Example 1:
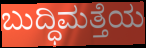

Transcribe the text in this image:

ಬುದ್ಧಿಮತ್ತೆಯ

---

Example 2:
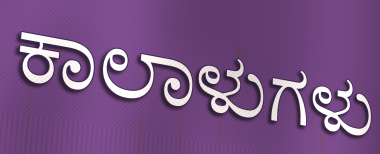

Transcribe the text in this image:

ಕಾಲಾಳುಗಳು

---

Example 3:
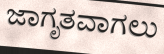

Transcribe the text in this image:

ಜಾಗೃತವಾಗಲು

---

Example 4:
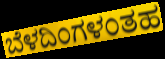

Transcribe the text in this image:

ಬೆಳದಿಂಗಳಂತಹ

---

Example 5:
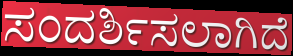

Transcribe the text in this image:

ಸಂದರ್ಶಿಸಲಾಗಿದೆ